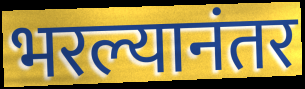
भरल्यानंतर